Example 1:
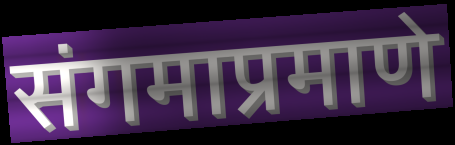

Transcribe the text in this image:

संगमाप्रमाणे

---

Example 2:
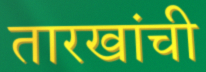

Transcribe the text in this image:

तारखांची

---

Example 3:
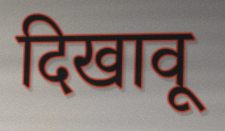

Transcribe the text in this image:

दिखावू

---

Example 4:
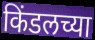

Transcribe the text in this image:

किंडलच्या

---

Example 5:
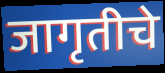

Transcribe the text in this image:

जागृतीचे